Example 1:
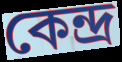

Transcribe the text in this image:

কেন্দ্র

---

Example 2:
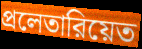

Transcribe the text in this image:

প্রলেতারিয়েত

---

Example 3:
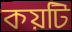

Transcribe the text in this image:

কয়টি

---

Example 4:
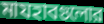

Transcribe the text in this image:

মাযহাবগুলোর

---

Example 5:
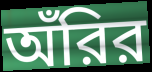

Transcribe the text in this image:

অঁরির